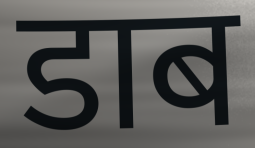
डाब